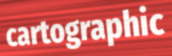
cartographic